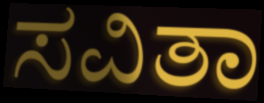
ಸವಿತಾ